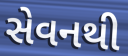
સેવનથી